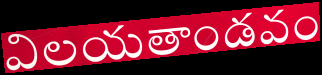
విలయతాండవం